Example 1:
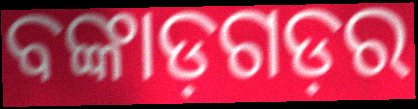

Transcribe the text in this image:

ବଙ୍କାଡ଼ଗଡ଼ର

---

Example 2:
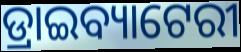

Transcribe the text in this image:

ଡ୍ରାଇବ୍ୟାଟେରୀ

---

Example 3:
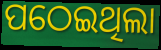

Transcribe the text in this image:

ପଠେଇଥିଲା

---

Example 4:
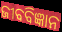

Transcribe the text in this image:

ଜୀବବିଜ୍ଞାନ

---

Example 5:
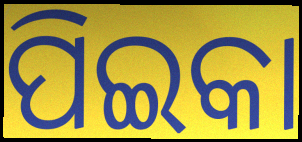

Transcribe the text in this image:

ପିଇକା